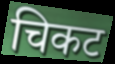
चिकट